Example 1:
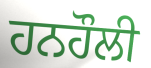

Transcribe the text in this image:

ਹਨਹੌਲੀ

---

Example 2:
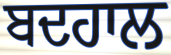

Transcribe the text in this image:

ਬਦਹਾਲ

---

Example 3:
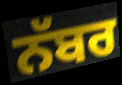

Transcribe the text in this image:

ਨੱਬਰ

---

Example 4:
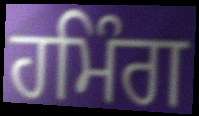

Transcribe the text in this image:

ਹਮਿੰਗ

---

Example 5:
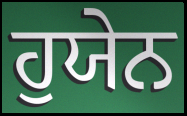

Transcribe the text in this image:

ਹੁਯੇਨ